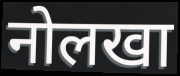
नोलखा